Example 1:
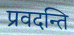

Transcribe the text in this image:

प्रवदन्ति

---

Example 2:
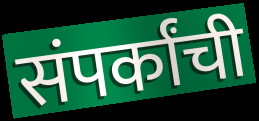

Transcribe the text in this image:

संपर्कांची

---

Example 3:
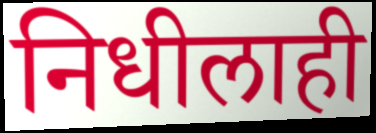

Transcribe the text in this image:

निधीलाही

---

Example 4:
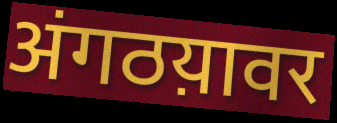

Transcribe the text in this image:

अंगठय़ावर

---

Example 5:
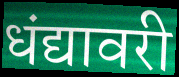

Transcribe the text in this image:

धंद्यावरी